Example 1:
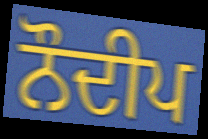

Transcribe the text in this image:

ਨੌਦੀਪ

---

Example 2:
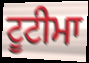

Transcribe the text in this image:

ਟੂਟੀਮਾ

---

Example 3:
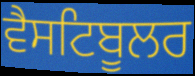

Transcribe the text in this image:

ਵੈਸਟਿਬੂਲਰ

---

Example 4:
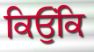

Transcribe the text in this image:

ਕਿਓੁਂਕਿ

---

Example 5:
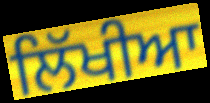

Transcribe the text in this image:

ਲਿੱਖੀਆ